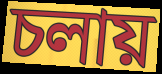
চলায়